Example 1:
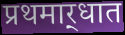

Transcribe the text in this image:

प्रथमार्धात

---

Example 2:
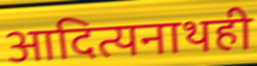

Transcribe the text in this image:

आदित्यनाथही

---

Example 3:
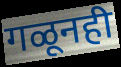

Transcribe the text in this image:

गळूनही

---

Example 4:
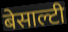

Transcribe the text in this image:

बेसाल्टी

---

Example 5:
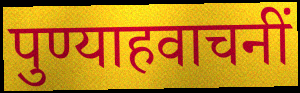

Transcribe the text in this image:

पुण्याहवाचनीं